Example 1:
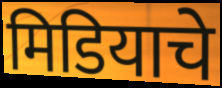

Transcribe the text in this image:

मिडियाचे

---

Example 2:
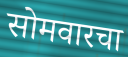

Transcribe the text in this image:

सोमवारचा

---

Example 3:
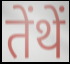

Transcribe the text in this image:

तेंथें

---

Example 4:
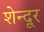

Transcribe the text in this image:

शेन्दूर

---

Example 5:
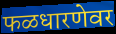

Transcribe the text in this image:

फळधारणेवर